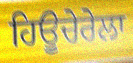
ਹਿਊਚੇਰੇਲਾ